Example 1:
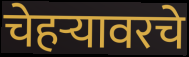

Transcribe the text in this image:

चेहऱ्यावरचे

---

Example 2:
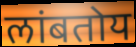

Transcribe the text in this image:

लांबतोय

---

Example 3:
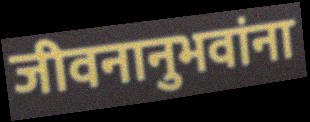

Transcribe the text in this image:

जीवनानुभवांना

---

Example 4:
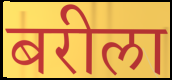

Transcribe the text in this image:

बरीला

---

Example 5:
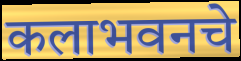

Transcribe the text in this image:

कलाभवनचे